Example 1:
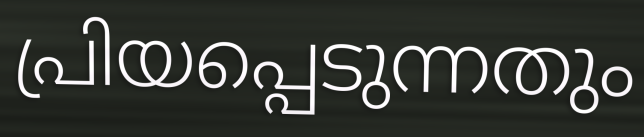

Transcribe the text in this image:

പ്രിയപ്പെടുന്നതും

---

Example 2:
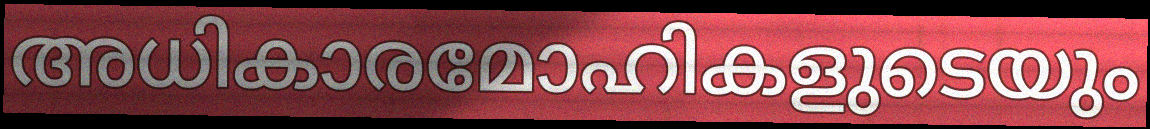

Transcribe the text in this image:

അധികാരമോഹികളുടെയും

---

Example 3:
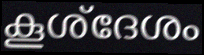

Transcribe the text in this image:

കൂശ്ദേശം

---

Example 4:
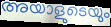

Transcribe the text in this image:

അയാളുടെയും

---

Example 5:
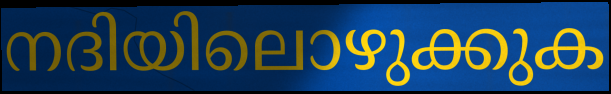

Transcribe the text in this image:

നദിയിലൊഴുക്കുക